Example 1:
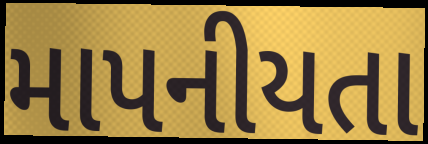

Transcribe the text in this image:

માપનીયતા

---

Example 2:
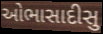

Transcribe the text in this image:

ઓભાસાદીસુ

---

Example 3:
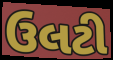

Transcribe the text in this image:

ઉલટી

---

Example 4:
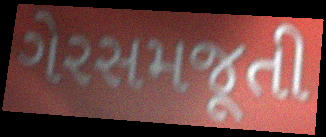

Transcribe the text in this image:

ગેરસમજૂતી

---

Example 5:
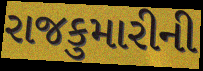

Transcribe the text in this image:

રાજકુમારીની